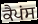
ਕੈਪਂਸ